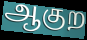
ஆகுற